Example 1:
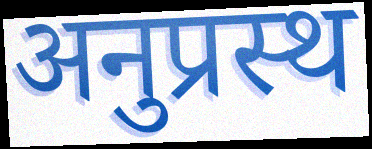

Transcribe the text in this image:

अनुप्रस्थ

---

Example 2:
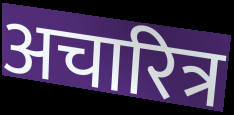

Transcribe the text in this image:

अचारित्र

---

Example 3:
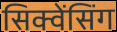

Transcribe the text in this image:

सिक्वेंसिंग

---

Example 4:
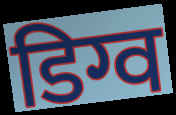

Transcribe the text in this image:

डिग्व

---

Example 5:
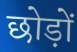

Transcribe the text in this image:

छोड़ों